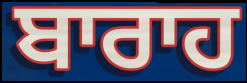
ਬਾਰਾਹ